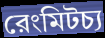
রেংমিটচ্য